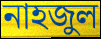
নাহজুল